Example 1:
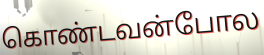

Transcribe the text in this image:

கொண்டவன்போல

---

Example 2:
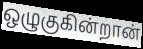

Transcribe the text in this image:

ஒழுகுகின்றான்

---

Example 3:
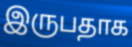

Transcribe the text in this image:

இருபதாக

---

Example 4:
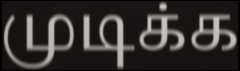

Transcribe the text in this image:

முடிக்க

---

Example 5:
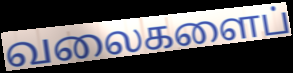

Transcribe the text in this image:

வலைகளைப்